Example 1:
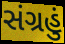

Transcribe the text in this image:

સંગ્રહું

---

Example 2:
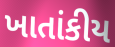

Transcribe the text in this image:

ખાતાંકીય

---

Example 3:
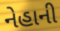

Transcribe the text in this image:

નેહાની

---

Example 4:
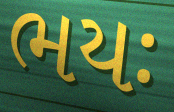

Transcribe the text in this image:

ભયઃ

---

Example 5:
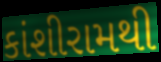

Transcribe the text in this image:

કાંશીરામથી